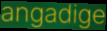
angadige